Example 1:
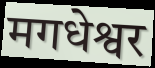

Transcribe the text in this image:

मगधेश्वर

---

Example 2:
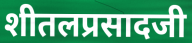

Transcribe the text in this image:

शीतलप्रसादजी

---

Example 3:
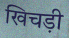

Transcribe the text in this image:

खिचड़ी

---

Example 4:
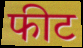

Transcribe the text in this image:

फीट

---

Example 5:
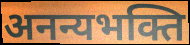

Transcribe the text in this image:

अनन्यभक्ति